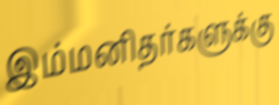
இம்மனிதர்களுக்கு